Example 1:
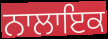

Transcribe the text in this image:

ਨਾਲਾਇਕ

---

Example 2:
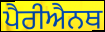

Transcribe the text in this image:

ਪੈਰੀਐਨਥ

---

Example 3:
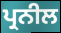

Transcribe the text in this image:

ਪ੍ਰਨੀਲ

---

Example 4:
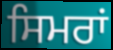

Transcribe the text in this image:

ਸਿਮਰਾਂ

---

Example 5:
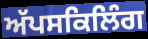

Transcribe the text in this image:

ਅੱਪਸਕਿਲਿੰਗ